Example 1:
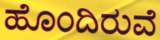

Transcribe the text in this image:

ಹೊಂದಿರುವೆ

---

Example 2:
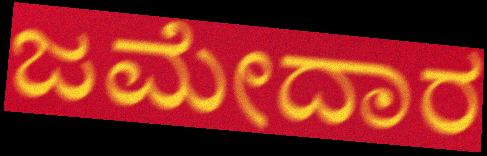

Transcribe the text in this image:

ಜಮೇದಾರ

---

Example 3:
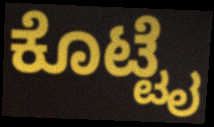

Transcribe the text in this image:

ಕೊಟ್ಟೈ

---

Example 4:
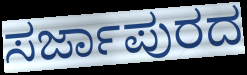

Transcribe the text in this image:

ಸರ್ಜಾಪುರದ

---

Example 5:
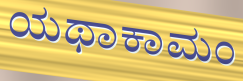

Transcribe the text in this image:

ಯಥಾಕಾಮಂ